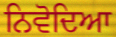
ਨਿਵੋਦਿਆ